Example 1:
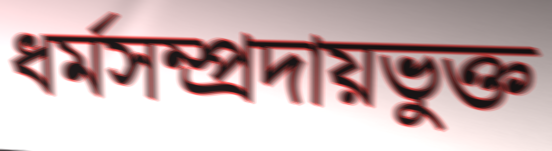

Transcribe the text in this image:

ধর্মসম্প্রদায়ভুক্ত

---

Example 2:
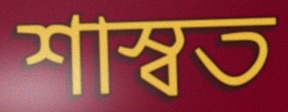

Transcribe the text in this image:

শাস্বত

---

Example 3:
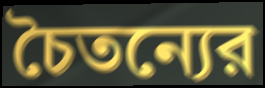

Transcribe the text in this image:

চৈতন্যের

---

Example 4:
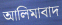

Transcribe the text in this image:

আলিমাবাদ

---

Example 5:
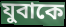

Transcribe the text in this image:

যুবাকে